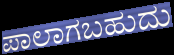
ಪಾಲಾಗಬಹುದು